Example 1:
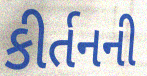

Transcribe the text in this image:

કીર્તનની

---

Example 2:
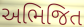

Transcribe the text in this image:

અભિજિત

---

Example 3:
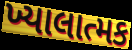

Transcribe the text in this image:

ખ્યાલાત્મક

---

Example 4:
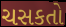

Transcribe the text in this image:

ચસકતો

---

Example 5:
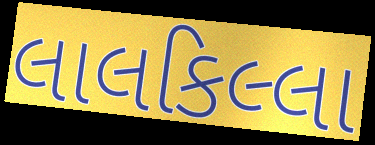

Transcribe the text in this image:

લાલકિલ્લા